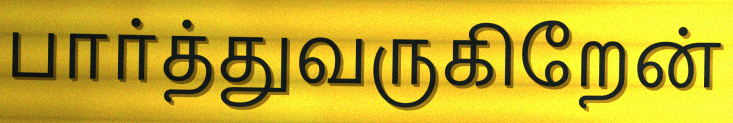
பார்த்துவருகிறேன்